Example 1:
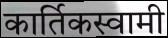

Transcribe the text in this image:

कार्तिकस्वामी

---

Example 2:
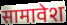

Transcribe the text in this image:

सामावेश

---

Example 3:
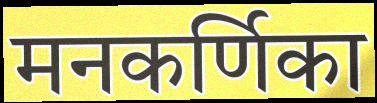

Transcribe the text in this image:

मनकर्णिका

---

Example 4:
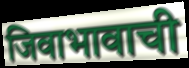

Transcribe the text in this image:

जिवाभावाची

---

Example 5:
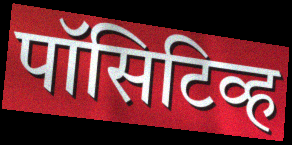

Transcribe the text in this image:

पॉसिटिव्ह